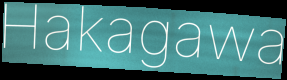
Hakagawa